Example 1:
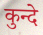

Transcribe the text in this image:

कुन्दे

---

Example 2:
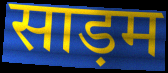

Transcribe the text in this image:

साड़म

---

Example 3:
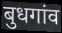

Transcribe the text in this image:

बुधगांव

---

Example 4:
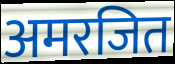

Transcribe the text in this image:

अमरजित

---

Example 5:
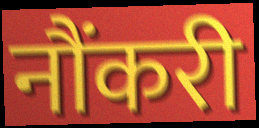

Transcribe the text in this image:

नौंकरी